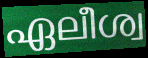
ഏലീശ്വ